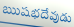
ఋషభదేవుడు